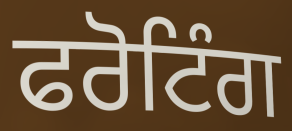
ਫਰੋਟਿੰਗ